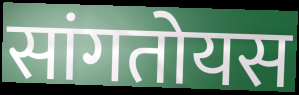
सांगतोयस